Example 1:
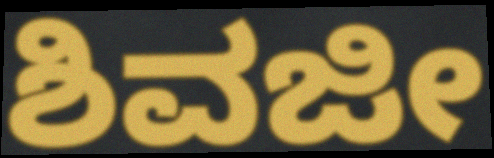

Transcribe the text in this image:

ಶಿವಜೀ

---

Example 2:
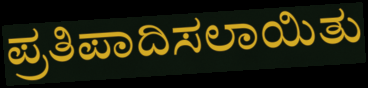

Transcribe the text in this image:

ಪ್ರತಿಪಾದಿಸಲಾಯಿತು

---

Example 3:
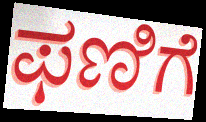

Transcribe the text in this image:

ಫಣಿಗೆ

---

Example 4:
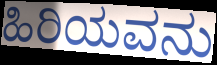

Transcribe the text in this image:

ಹಿರಿಯವನು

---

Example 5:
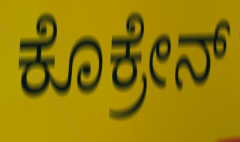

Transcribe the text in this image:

ಕೊಕ್ರೇನ್